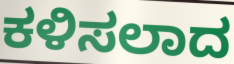
ಕಳಿಸಲಾದ